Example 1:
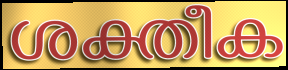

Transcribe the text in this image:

ശക്തീക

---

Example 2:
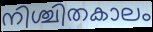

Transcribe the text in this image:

നിശ്ചിതകാലം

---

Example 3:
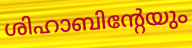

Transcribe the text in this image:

ശിഹാബിന്റേയും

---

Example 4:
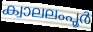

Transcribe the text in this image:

ക്വാലലംപൂർ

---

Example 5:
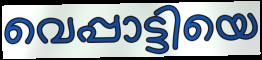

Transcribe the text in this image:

വെപ്പാട്ടിയെ